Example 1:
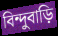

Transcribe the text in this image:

বিন্দুবাড়ি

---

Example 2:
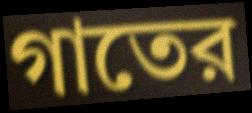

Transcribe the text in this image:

গাতের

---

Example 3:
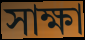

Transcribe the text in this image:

সাক্ষা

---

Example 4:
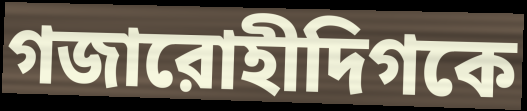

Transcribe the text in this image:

গজারোহীদিগকে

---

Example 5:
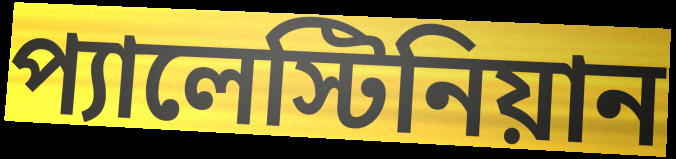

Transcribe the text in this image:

প্যালেস্টিনিয়ান